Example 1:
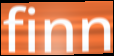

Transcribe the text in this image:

finn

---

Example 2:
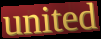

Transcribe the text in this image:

united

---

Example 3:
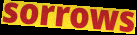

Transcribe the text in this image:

sorrows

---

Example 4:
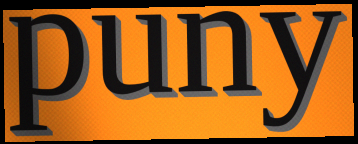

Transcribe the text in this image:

puny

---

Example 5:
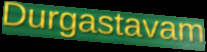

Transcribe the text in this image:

Durgastavam